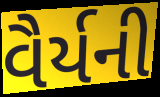
વૈર્યની